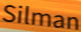
Silman